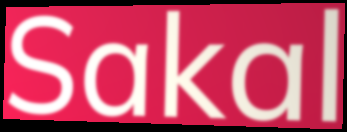
Sakal